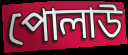
পোলাউ